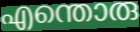
എന്തൊരു